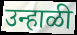
उन्हाळी